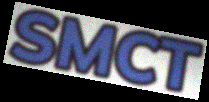
SMCT